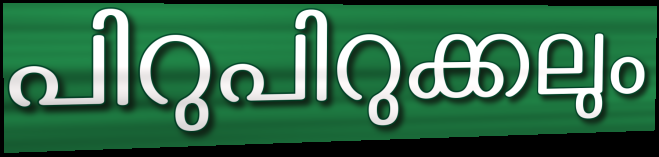
പിറുപിറുക്കലും